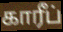
காரீப்